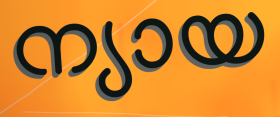
ന്യായ